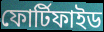
ফোর্টিফাইড